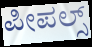
ಪೀಪಲ್ಸ್